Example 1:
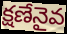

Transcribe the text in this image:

క్షణేనైవ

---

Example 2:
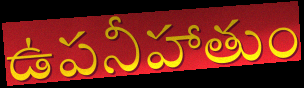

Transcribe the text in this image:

ఉపనీహాతుం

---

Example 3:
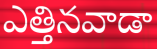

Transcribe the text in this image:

ఎత్తినవాడా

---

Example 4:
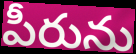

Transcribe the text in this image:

పీరును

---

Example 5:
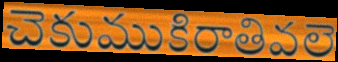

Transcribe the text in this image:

చెకుముకిరాతివలె